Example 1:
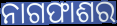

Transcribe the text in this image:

ନାଗଫାଶର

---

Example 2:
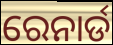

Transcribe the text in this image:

ରେନାର୍ଡ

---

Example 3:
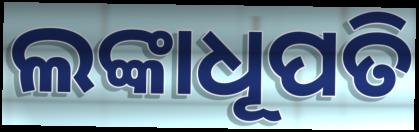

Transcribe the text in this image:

ଲଙ୍କାଧୂପତି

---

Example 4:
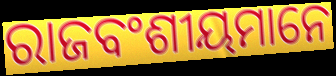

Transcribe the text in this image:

ରାଜବଂଶୀୟମାନେ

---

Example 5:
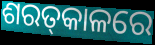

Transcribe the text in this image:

ଶରତ୍‌କାଳରେ